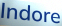
Indore